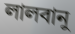
লালবানু